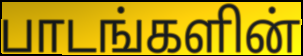
பாடங்களின்